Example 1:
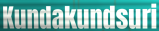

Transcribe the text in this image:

Kundakundsuri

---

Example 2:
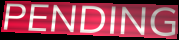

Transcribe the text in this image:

PENDING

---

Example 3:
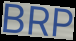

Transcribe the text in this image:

BRP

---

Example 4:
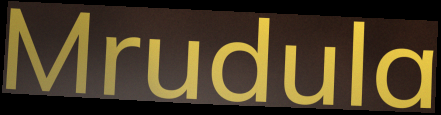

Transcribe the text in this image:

Mrudula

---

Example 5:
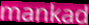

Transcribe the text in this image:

mankad